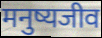
मनुष्यजीव